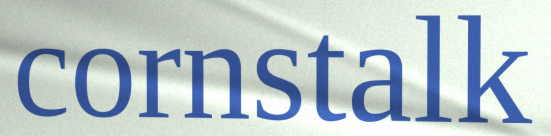
cornstalk